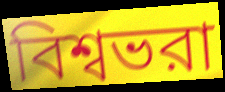
বিশ্বভরা